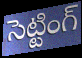
సెట్టింగ్